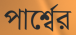
পার্শ্বের